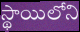
స్థాయిలోని